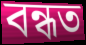
বন্ধত